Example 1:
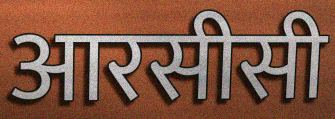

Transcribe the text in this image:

आरसीसी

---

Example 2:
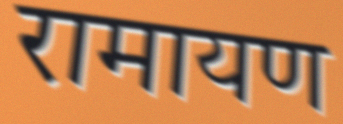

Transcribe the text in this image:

रामायण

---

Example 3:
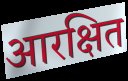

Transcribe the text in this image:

आरक्षित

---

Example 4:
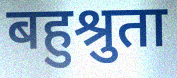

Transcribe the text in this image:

बहुश्रुता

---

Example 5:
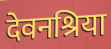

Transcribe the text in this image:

देवनश्रिया